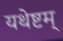
यथेष्टम्